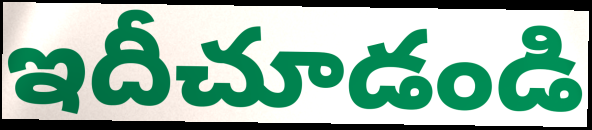
ఇదీచూడండి